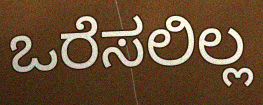
ಒರೆಸಲಿಲ್ಲ